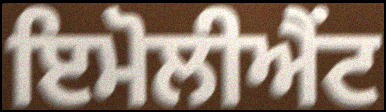
ਇਮੋਲੀਐਂਟ